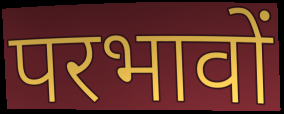
परभावों